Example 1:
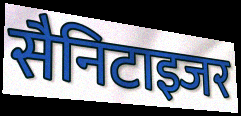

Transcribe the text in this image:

सैनिटाइजर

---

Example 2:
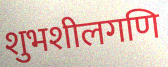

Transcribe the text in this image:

शुभशीलगणि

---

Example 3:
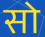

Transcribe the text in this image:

सो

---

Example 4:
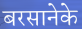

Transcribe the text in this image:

बरसानेके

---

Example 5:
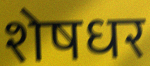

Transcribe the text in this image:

शेषधर